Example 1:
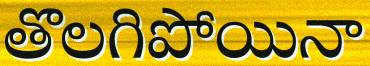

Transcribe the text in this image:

తొలగిపోయినా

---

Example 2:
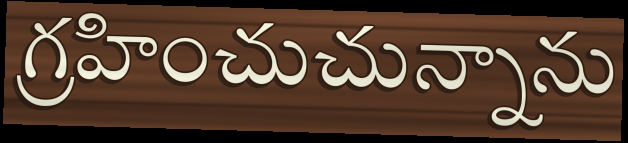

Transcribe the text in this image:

గ్రహించుచున్నాను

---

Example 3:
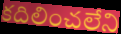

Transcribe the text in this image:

కదిలించలేని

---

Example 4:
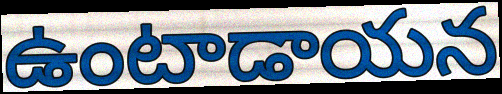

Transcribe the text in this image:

ఉంటాడాయన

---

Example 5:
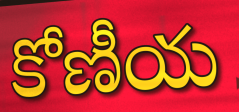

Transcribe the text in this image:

కోణీయ